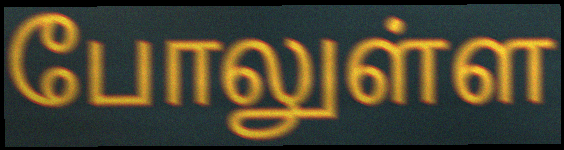
போலுள்ள